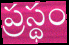
ప్రస్థం